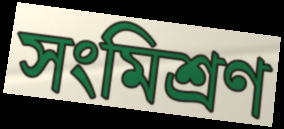
সংমিশ্রণ